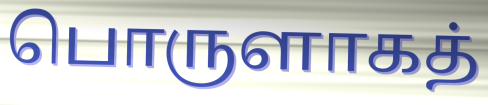
பொருளாகத்